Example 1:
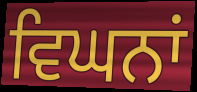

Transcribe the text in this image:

ਵਿਘਨਾਂ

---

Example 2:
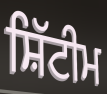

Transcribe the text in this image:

ਸ਼ਿੱਟੀਮ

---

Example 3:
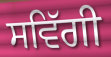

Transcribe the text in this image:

ਸਵਿੱਗੀ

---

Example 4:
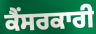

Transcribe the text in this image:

ਕੈਂਸਰਕਾਰੀ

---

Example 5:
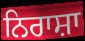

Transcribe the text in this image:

ਨਿਰਾਸ਼ਾ